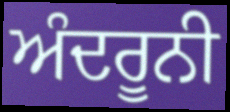
ਅੰਦਰੂਨੀ